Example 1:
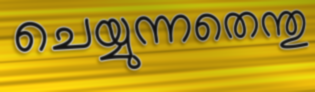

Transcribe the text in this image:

ചെയ്യുന്നതെന്തു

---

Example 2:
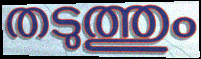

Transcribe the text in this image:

തടുത്തും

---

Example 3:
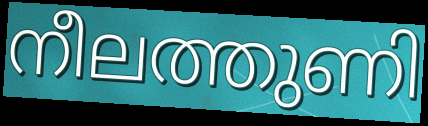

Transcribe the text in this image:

നീലത്തുണി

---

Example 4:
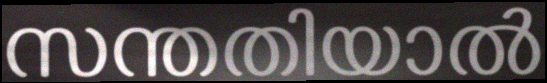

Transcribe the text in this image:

സന്തതിയാൽ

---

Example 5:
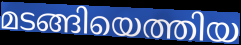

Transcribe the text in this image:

മടങ്ങിയെത്തിയ